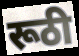
रूठी